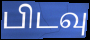
பிடவு